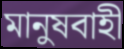
মানুষবাহী